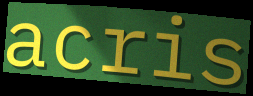
acris